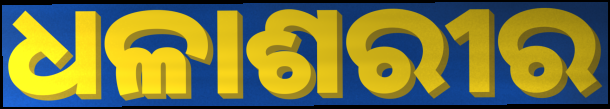
ଧଳାଶରୀର